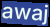
awaj